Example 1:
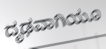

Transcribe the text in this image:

ದೃಢವಾಗಿಯೂ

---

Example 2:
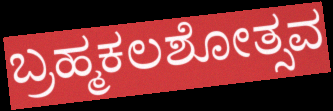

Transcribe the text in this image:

ಬ್ರಹ್ಮಕಲಶೋತ್ಸವ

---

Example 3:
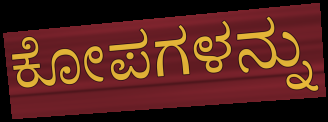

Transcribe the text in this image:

ಕೋಪಗಳನ್ನು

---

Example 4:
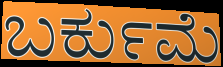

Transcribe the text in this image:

ಬರ್ಕುಮೆ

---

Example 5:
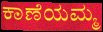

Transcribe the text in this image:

ಕಾಣೆಯಮ್ಮ